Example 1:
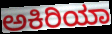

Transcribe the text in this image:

ಅಕಿರಿಯಾ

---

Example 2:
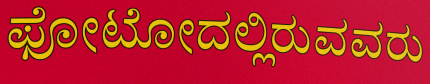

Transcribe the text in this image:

ಫೋಟೋದಲ್ಲಿರುವವರು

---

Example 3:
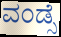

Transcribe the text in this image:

ವಂಡ್ಸೆ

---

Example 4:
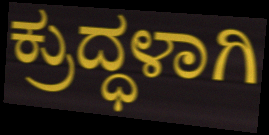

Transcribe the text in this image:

ಕ್ರುದ್ಧಳಾಗಿ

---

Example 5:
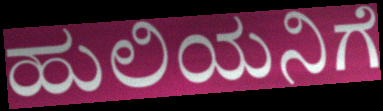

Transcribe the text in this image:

ಹುಲಿಯನಿಗೆ